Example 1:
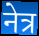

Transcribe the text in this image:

नेत्र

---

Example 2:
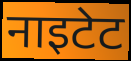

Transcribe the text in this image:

नाइटेट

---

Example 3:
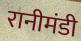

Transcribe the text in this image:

रानीमंडी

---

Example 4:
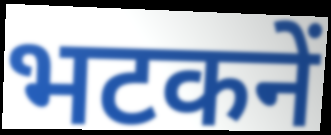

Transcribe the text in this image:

भटकनें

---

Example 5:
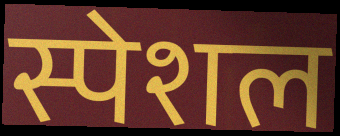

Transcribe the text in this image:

स्पेशल